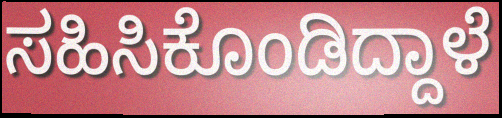
ಸಹಿಸಿಕೊಂಡಿದ್ದಾಳೆ